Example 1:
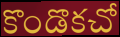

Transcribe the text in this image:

కొండొకచో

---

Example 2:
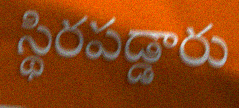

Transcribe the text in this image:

స్థిరపడ్డారు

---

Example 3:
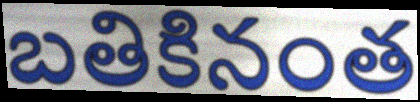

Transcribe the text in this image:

బతికినంత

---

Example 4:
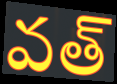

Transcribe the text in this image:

వత్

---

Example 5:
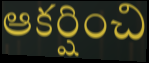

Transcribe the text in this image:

ఆకర్షించి